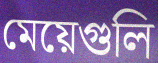
মেয়েগুলি